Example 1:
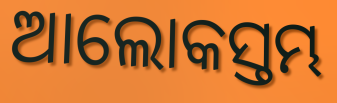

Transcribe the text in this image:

ଆଲୋକସ୍ତମ୍ଭ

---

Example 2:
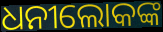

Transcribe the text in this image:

ଧନୀଲୋକଙ୍କ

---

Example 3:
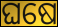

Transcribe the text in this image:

ଘଷେ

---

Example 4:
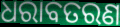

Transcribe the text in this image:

ଧରାବତରଣ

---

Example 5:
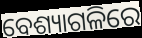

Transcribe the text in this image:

ବେଶ୍ୟାଗଳିରେ